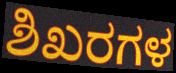
ಶಿಖರಗಳ